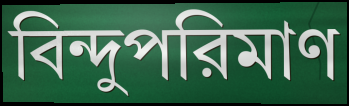
বিন্দুপরিমাণ